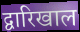
द्वारिखाल